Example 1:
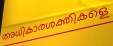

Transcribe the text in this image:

അധികാരശക്തികളെ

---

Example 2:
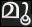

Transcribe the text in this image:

മൂ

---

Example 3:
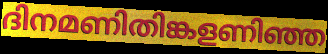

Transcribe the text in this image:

ദിനമണിതിങ്കളണിഞ്ഞ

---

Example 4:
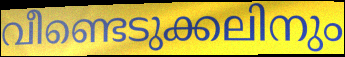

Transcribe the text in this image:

വീണ്ടെടുക്കലിനും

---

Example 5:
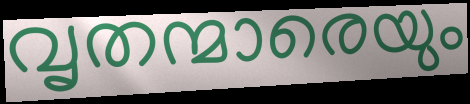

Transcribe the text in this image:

വൃതന്മാരെയും